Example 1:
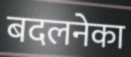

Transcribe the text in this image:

बदलनेका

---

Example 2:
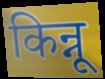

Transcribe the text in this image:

किन्नू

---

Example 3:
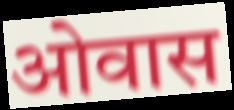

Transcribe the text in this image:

ओवास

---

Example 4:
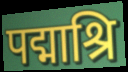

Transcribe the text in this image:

पद्माश्रि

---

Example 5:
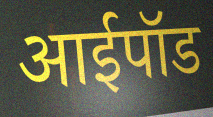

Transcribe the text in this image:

आईपॉड